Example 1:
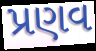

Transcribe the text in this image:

પ્રણવ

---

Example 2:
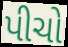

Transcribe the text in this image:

પીચો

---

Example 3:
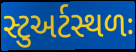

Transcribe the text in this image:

સ્ટુઅર્ટસ્થળઃ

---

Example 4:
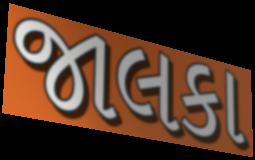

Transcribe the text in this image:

જાલકા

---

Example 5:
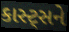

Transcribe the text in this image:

કાસ્ટ્સને